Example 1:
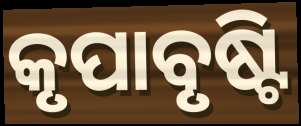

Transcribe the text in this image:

କୃପାବୃଷ୍ଟି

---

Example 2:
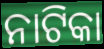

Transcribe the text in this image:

ନାଟିକା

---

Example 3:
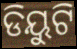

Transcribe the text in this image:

ଡିୟୁଟି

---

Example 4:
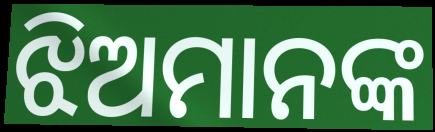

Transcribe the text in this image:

ଝିଅମାନଙ୍କ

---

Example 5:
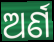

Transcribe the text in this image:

ଅର୍ଣ